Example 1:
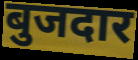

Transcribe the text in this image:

बुजदार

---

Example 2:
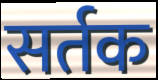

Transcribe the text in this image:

सर्तक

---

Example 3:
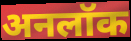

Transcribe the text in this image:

अनलॉक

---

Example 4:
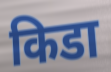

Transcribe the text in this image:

किडा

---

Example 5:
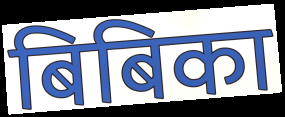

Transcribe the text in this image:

बिबिका